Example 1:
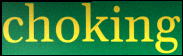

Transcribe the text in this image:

choking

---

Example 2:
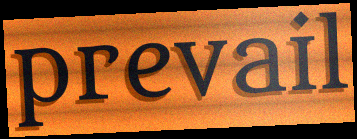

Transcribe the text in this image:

prevail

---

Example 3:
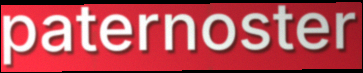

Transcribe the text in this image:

paternoster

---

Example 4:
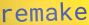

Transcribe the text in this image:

remake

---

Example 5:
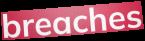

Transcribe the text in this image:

breaches